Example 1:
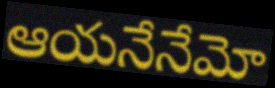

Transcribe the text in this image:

ఆయనేనేమో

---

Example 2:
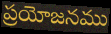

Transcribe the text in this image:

ప్రయోజనము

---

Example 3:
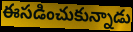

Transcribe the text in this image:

ఈసడించుకున్నాడు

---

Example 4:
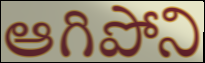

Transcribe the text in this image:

ఆగిపోని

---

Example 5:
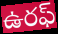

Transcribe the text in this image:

ఉరఫ్